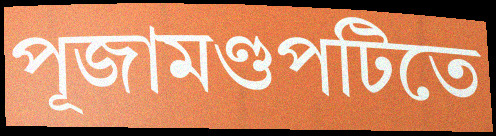
পূজামণ্ডপটিতে